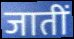
जातीं